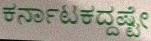
ಕರ್ನಾಟಕದ್ದಷ್ಟೇ